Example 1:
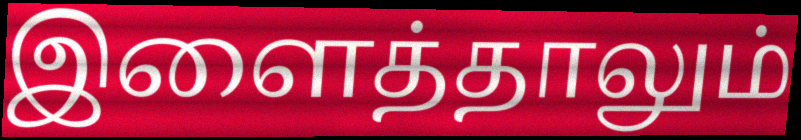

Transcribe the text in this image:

இளைத்தாலும்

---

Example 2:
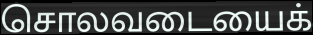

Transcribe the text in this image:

சொலவடையைக்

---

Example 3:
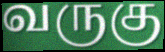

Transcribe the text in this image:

வருகு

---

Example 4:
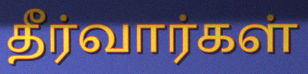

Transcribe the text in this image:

தீர்வார்கள்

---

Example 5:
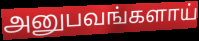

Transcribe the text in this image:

அனுபவங்களாய்